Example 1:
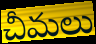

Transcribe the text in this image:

చీమలు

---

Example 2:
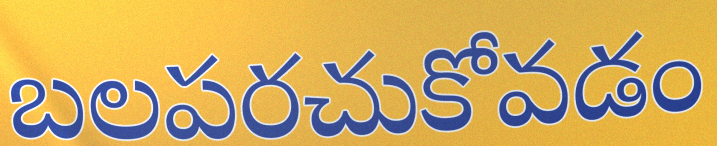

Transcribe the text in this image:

బలపరచుకోవడం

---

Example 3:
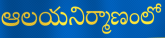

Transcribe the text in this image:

ఆలయనిర్మాణంలో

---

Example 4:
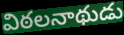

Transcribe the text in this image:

విఠలనాథుడు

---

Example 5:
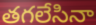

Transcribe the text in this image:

తగలేసినా